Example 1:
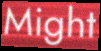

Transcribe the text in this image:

Might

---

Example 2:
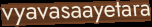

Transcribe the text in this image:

vyavasaayetara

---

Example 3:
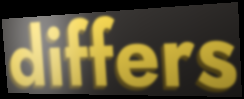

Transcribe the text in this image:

differs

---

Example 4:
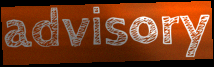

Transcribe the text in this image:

advisory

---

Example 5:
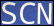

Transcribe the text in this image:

SCN